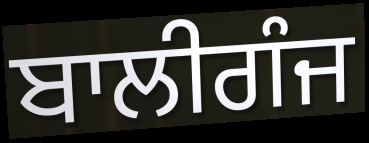
ਬਾਲੀਗੰਜ